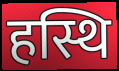
हस्थि